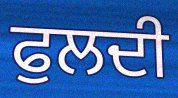
ਫੁਲਦੀ